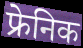
फ्रेनिक